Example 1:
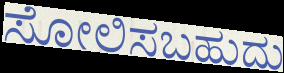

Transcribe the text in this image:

ಸೋಲಿಸಬಹುದು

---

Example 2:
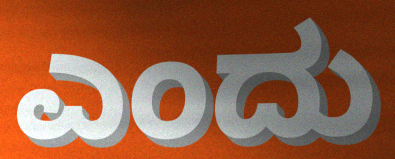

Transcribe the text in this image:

ಎಂದು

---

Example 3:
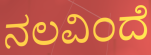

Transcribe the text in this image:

ನಲವಿಂದೆ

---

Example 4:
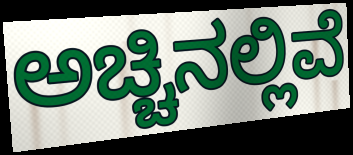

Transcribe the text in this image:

ಅಚ್ಚಿನಲ್ಲಿವೆ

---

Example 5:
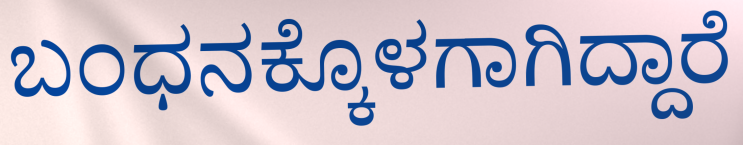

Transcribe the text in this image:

ಬಂಧನಕ್ಕೊಳಗಾಗಿದ್ದಾರೆ